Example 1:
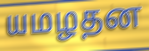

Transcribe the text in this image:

யமழதன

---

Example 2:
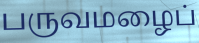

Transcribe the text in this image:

பருவமழைப்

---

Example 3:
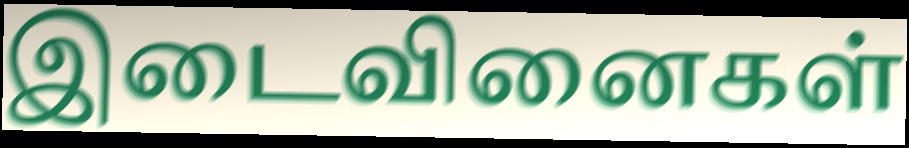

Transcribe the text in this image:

இடைவினைகள்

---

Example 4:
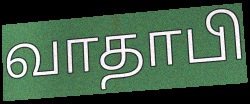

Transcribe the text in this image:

வாதாபி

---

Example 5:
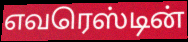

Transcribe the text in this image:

எவரெஸ்டின்